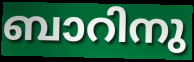
ബാറിനു